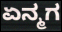
ಏನ್ಮಗ